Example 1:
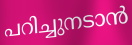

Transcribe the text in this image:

പറിച്ചുനടാൻ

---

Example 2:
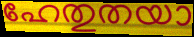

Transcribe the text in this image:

ഹേതുതയാ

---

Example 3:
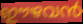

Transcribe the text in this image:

ഈഴവൻ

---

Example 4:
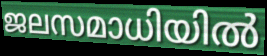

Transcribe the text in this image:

ജലസമാധിയിൽ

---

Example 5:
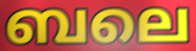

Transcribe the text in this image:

ബലെ